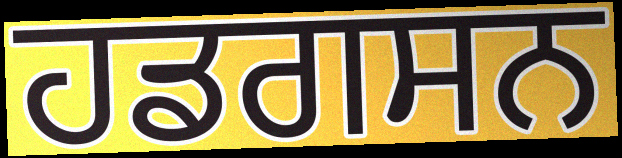
ਹਡਗਸਨ